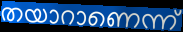
തയാറാണെന്ന്